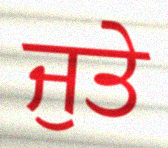
ਜੁਤੇ